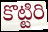
కొట్టిరి